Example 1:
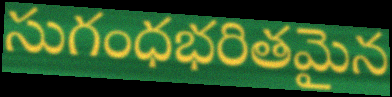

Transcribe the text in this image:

సుగంధభరితమైన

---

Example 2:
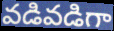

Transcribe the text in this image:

వడివడిగా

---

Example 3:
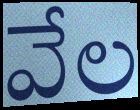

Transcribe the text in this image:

వేల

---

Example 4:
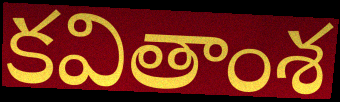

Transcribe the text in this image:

కవితాంశ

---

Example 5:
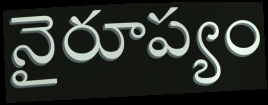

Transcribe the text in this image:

నైరూప్యం